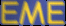
EME